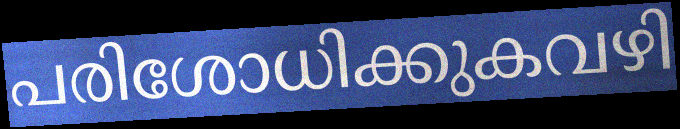
പരിശോധിക്കുകവഴി